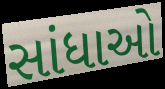
સાંધાઓ